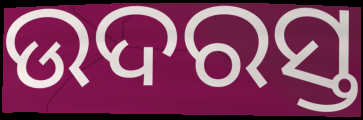
ଉଦରସ୍ତ